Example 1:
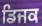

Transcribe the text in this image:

ਡਿਜਕ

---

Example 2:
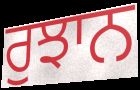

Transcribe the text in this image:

ਰੁਝਾਨ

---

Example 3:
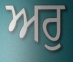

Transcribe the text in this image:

ਅਰੁ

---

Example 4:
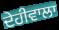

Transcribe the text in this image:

ਦੇਹੀਵਾਲਾ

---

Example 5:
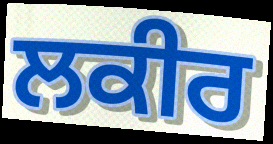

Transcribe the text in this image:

ਲਕੀਰ